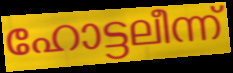
ഹോട്ടലീന്ന്